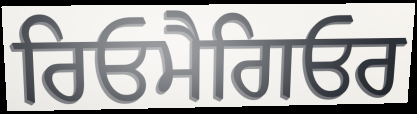
ਰਿਓਮੈਗਿਓਰ